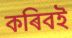
কৰিবই